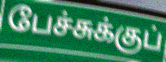
பேச்சுக்குப்